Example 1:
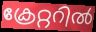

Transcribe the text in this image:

ക്രേറ്ററിൽ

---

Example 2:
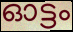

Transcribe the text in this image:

ഓട്ടം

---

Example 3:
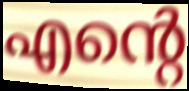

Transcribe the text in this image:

എന്റെ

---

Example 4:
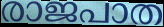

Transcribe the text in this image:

രാജപാത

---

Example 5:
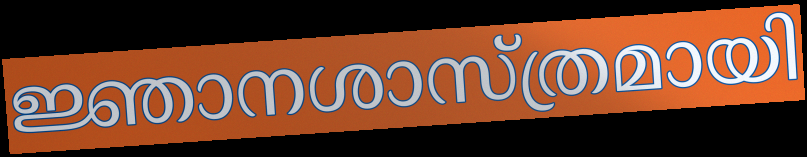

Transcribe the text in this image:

ജ്ഞാനശാസ്ത്രമായി